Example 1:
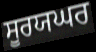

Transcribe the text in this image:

ਸੂਰਯਘਰ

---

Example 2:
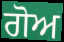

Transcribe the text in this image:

ਗੋਅ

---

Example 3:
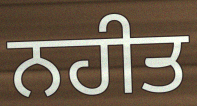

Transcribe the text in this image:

ਨਹੀਤ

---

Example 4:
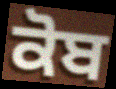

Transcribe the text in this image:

ਕੋਬ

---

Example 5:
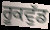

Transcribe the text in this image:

ਰੂਕਵੁੱਡ